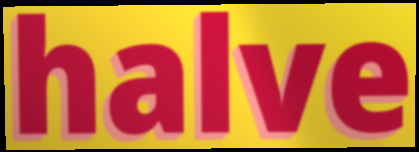
halve